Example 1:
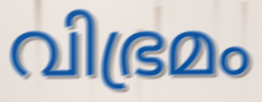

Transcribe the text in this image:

വിഭ്രമം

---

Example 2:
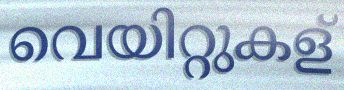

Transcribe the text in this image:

വെയിറ്റുകള്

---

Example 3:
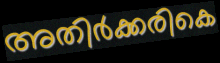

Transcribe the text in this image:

അതിർക്കരികെ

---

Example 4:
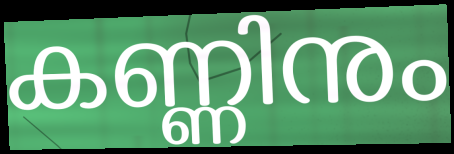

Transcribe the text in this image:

കണ്ണിനും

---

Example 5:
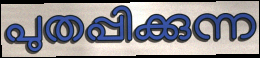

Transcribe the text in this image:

പുതപ്പിക്കുന്ന